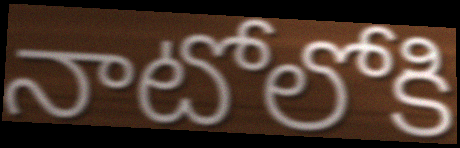
నాటోలోకి